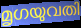
മൃഗയുവതി